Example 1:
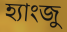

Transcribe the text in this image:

হ্যাংজু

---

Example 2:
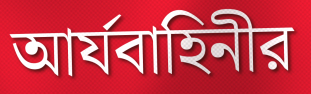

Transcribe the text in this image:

আর্যবাহিনীর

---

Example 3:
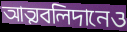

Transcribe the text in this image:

আত্মবলিদানেও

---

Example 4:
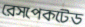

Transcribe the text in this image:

রেসপেকটেড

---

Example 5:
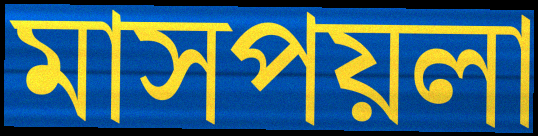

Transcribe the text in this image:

মাসপয়লা